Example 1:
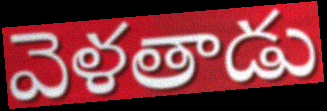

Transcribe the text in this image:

వెళతాడు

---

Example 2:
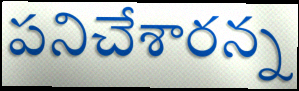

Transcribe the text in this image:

పనిచేశారన్న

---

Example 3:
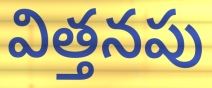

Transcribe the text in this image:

విత్తనపు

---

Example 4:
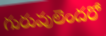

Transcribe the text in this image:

గురువులెందరో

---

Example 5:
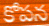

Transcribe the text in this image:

కోపన